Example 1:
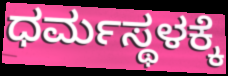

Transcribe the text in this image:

ಧರ್ಮಸ್ಥಳಕ್ಕೆ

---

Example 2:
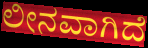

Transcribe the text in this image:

ಲೀನವಾಗಿದೆ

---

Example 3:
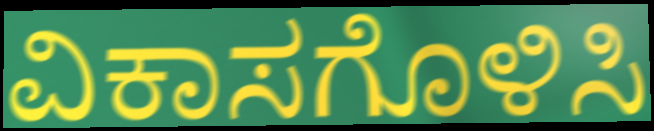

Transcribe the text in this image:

ವಿಕಾಸಗೊಳಿಸಿ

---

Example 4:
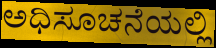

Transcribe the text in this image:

ಅಧಿಸೂಚನೆಯಲ್ಲಿ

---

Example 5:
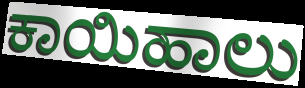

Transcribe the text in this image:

ಕಾಯಿಹಾಲು